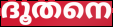
ദൂതനെ